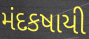
મંદકષાયી